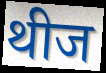
थीज